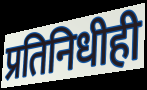
प्रतिनिधीही